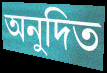
অনুদিত